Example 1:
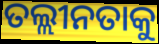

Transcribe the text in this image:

ତଲ୍ଲୀନତାକୁ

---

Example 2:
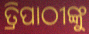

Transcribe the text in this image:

ତ୍ରିପାଠୀଙ୍କୁ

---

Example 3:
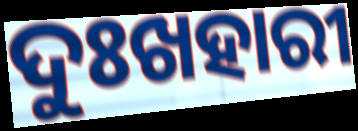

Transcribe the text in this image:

ଦୁଃଖହାରୀ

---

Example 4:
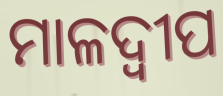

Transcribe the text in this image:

ମାଳଦ୍ଵୀପ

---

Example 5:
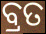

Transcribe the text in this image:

ବ୍ରତ